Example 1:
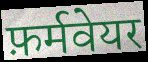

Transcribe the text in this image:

फ़र्मवेयर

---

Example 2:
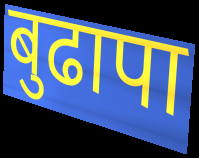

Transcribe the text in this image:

बुढापा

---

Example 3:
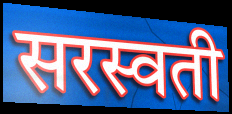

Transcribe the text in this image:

सरस्‍वती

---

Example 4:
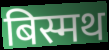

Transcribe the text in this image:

बिस्मथ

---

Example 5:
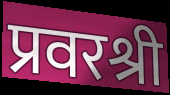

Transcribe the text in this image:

प्रवरश्री